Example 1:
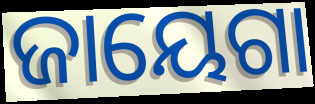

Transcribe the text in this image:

ଜାୟେଗା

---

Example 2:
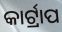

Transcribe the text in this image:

କାର୍ଟ୍ରାପ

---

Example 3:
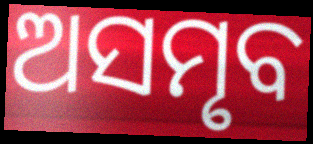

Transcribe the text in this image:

ଅସମୃବ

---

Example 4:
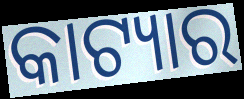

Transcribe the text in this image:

କାଟ୍ୟାର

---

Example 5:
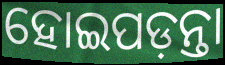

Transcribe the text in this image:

ହୋଇପଡ଼ନ୍ତା